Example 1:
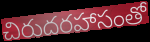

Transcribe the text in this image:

చిరుదరహాసంతో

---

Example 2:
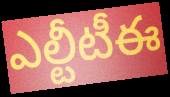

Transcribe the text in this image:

ఎల్టీటీఈ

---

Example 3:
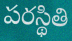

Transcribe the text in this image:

పరస్థితి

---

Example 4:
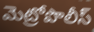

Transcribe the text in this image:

మెట్రోపొలీస్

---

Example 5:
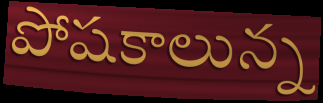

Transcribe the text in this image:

పోషకాలున్న